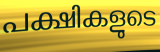
പക്ഷികളുടെ